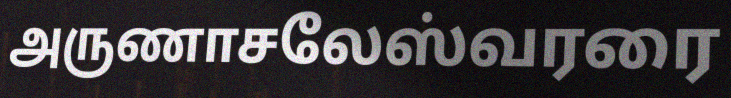
அருணாசலேஸ்வரரை